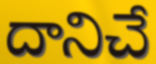
దానిచే